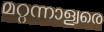
മറ്റന്നാള്വരെ